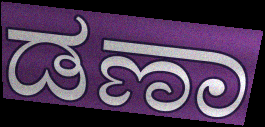
ಡಣಾ